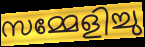
സമ്മേളിച്ചു